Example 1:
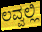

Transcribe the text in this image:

ಲವ್ವಲ್ಲಿ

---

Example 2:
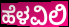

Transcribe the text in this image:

ಹೆಳವಿಲಿ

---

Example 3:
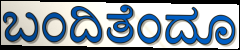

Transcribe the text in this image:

ಬಂದಿತೆಂದೂ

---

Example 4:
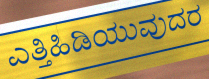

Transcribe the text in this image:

ಎತ್ತಿಹಿಡಿಯುವುದರ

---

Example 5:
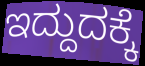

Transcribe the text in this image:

ಇದ್ದುದಕ್ಕೆ